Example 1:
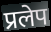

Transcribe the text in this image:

प्रलेप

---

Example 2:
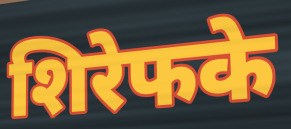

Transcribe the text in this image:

शिरेफके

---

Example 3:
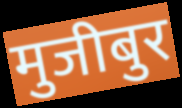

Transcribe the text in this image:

मुजीबुर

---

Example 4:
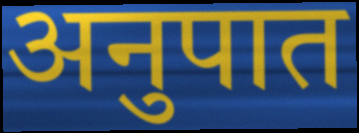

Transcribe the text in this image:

अनुपात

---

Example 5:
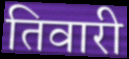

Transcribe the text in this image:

तिवारी